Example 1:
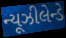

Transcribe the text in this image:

ન્યૂઝીલેન્ડે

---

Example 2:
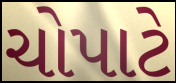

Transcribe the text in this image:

ચોપાટે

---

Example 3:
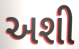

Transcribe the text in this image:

અશી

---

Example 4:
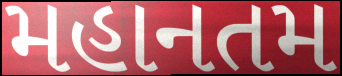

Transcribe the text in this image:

મહાનતમ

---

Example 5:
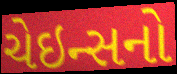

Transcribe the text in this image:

ચેઇન્સનો